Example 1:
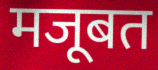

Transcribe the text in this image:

मजूबत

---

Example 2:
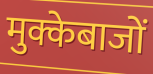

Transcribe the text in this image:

मुक्केबाजों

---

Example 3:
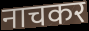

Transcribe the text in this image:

नाचकर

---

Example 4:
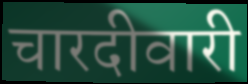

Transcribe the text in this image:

चारदीवारी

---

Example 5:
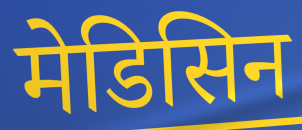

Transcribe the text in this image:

मेडिसिन